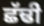
ਛੱਢੀ